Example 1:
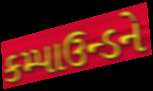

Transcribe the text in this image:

કમ્પાઉન્ડને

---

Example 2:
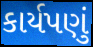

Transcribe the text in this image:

કાર્યપણું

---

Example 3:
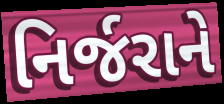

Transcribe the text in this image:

નિર્જરાને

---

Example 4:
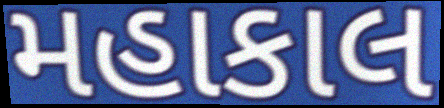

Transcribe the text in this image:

મહાકાલ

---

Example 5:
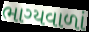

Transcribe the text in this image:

ભાગ્યવાળાં